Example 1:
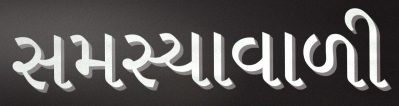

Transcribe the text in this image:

સમસ્યાવાળી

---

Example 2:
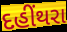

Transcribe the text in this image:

દહીંથરા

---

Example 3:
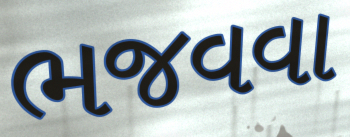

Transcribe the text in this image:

ભજવવા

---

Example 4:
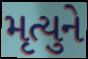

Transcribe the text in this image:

મૃત્યુને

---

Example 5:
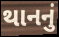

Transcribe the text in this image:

થાનનું